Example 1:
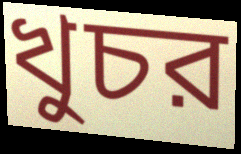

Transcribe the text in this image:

খুচর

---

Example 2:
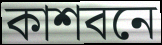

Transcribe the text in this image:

কাশবনে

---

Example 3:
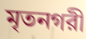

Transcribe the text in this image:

মৃতনগরী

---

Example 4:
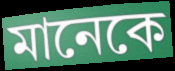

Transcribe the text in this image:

মানেকে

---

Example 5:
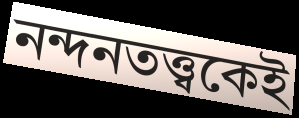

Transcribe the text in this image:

নন্দনতত্ত্বকেই